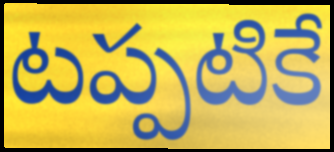
టప్పటికే